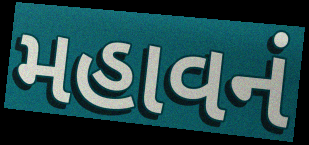
મહાવનં